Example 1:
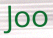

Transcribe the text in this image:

Joo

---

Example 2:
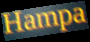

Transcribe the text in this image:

Hampa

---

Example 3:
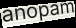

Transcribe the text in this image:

anopam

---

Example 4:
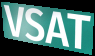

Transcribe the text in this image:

VSAT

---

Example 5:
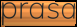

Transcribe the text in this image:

prasa